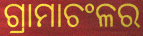
ଗ୍ରାମାଚଂଳର